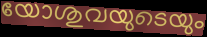
യോശുവയുടെയും